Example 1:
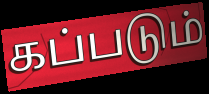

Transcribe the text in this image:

கப்படும்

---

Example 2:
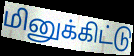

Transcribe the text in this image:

மினுக்கிட்டு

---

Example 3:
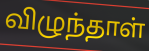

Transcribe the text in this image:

விழுந்தாள்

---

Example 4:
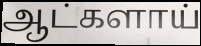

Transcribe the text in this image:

ஆட்களாய்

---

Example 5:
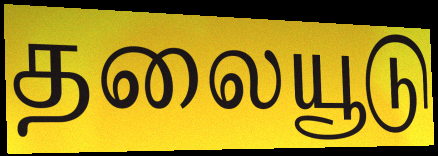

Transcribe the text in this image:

தலையூடு